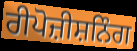
ਰੀਪੋਜ਼ੀਸ਼ਨਿੰਗ